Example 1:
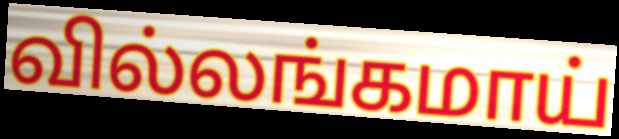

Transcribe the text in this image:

வில்லங்கமாய்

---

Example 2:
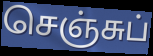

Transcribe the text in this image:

செஞ்சுப்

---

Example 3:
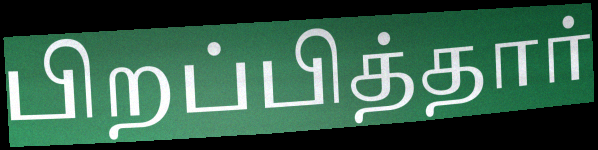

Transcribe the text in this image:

பிறப்பித்தார்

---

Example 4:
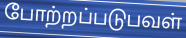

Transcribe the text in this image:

போற்றப்படுபவள்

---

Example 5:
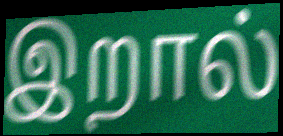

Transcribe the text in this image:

இறால்